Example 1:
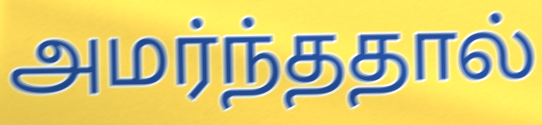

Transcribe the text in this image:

அமர்ந்ததால்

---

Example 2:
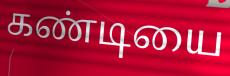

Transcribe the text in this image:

கண்டியை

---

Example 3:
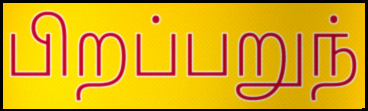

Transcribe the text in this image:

பிறப்பறுந்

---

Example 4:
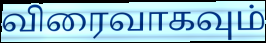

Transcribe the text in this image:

விரைவாகவும்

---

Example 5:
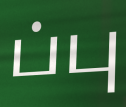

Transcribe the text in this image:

ப்பு